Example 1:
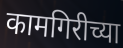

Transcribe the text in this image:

कामगिरीच्या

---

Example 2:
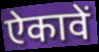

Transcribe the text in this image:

ऐकावें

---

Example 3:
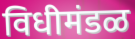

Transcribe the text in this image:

विधीमंडळ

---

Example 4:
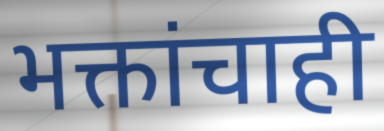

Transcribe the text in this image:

भक्तांचाही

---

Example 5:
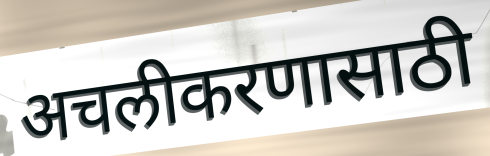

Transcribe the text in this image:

अचलीकरणासाठी